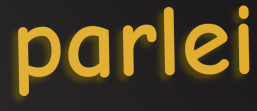
parlei